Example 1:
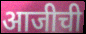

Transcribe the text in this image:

आजीची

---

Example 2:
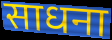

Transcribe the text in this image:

साधना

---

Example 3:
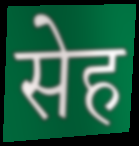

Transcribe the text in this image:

सेह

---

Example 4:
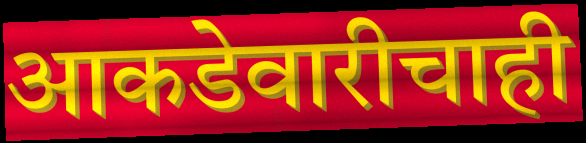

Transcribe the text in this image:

आकडेवारीचाही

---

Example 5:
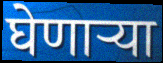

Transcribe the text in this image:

घेणार्‍या